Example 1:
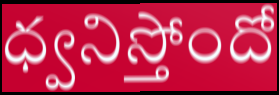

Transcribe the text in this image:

ధ్వనిస్తోందో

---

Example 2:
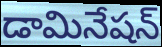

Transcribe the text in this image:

డామినేషన్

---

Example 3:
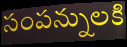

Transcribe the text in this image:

సంపన్నులకి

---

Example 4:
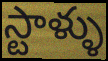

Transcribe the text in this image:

స్టాళ్ళు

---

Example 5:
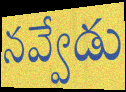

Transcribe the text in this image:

నవ్వేడు